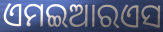
ଏମଇଆରଏସ